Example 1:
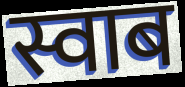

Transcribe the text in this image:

स्वाब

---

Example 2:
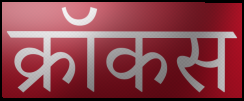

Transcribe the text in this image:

क्रॉकस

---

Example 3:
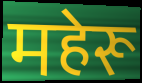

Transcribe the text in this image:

महेरू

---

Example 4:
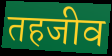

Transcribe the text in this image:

तहजीव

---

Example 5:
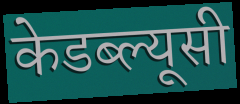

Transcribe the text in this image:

केडब्ल्यूसी